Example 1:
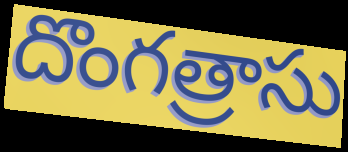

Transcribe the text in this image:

దొంగత్రాసు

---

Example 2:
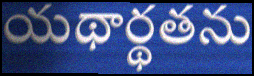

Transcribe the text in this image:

యథార్థతను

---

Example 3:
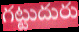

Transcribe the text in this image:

గట్టుదురు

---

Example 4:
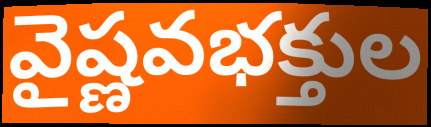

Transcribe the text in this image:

వైష్ణవభక్తుల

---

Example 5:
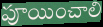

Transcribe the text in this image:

పూయించాలి